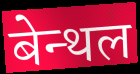
बेन्थल